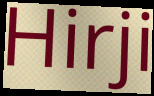
Hirji